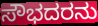
ಸೌಭದರನು